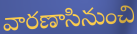
వారణాసినుంచి